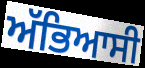
ਅੱਭਿਆਸੀ